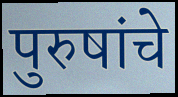
पुरुषांचे